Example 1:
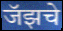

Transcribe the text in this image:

जॅझचे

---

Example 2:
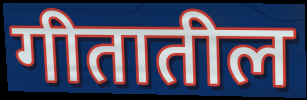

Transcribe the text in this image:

गीतातील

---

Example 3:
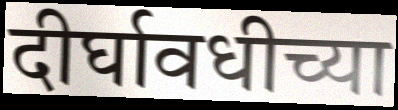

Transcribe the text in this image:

दीर्घावधीच्या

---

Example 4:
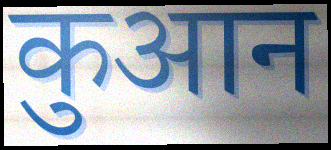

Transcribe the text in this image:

कुआन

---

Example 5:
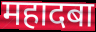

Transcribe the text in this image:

महादबा